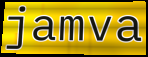
jamva